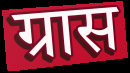
ग्रास